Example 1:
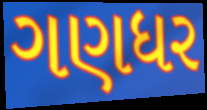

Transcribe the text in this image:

ગણધર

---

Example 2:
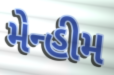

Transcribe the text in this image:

મેન્હીમ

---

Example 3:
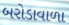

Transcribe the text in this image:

બરોડાવાળા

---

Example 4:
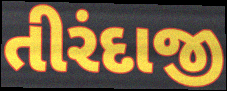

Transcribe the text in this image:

તીરંદાજી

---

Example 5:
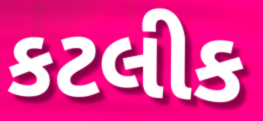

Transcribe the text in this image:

કટલીક